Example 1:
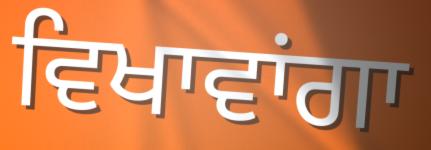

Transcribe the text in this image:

ਵਿਖਾਵਾਂਗਾ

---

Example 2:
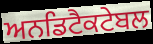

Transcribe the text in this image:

ਅਨਡਿਟੈਕਟੇਬਲ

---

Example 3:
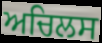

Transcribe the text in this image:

ਅਚਿਲਸ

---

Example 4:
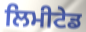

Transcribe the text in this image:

ਲਿਮੀਟੇਡ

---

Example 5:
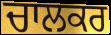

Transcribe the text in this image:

ਚਾਲਕਰ